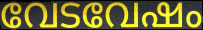
വേടവേഷം